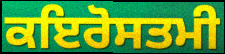
ਕਇਰੋਸਤਮੀ